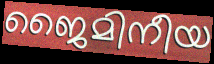
ജൈമിനീയ